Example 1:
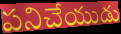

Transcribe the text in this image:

పనిచేయుడు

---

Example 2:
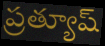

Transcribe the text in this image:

ప్రత్యూష్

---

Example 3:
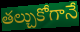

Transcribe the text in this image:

తల్చుకోగానే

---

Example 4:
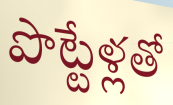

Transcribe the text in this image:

పొట్టేళ్లతో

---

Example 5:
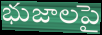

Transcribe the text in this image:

భుజాలపై